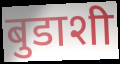
बुडाशी